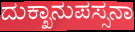
ದುಕ್ಖಾನುಪಸ್ಸನಾ